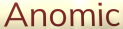
Anomic